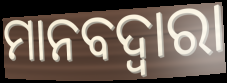
ମାନବଦ୍ୱାରା